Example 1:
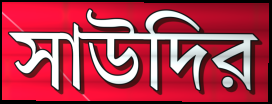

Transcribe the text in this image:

সাউদির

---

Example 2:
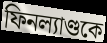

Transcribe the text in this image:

ফিনল্যাণ্ডকে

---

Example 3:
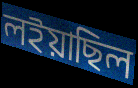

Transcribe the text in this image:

লইয়াছিল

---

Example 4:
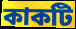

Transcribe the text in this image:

কাকটি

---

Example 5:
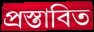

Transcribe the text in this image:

প্রস্তাবিত